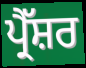
ਪ੍ਰੈੱਸ਼ਰ